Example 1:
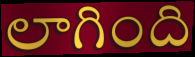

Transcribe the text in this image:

లాగింది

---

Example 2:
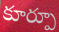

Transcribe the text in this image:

కూర్పూ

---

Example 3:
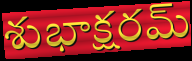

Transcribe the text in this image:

శుభాక్షరమ్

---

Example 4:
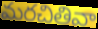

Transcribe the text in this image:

మరచితివా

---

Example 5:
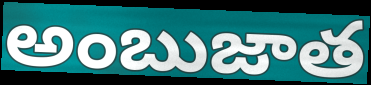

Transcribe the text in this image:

అంబుజాత